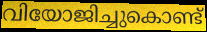
വിയോജിച്ചുകൊണ്ട്